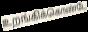
உறங்கிக்கொண்டே